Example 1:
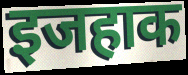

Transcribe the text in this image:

इजहाक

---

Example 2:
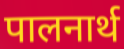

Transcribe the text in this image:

पालनार्थ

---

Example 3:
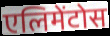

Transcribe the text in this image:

एलिमेंटोस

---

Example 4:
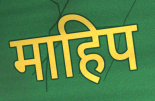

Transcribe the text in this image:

माहिप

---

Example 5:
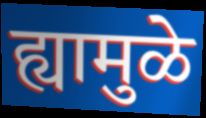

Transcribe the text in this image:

ह्यामुळे